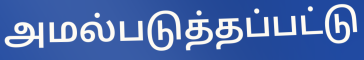
அமல்படுத்தப்பட்டு